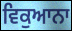
ਵਿਕੁਆਨਾ